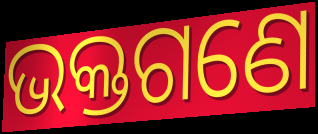
ଭକ୍ତଗଣେ